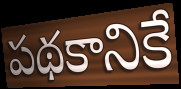
పథకానికే